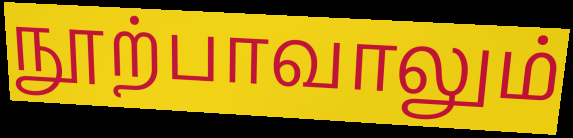
நூற்பாவாலும்